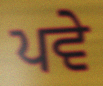
ਪਵੇ